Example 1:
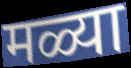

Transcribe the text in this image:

मळ्या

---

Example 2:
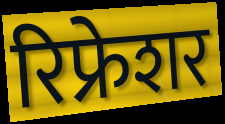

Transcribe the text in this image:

रिफ्रेशर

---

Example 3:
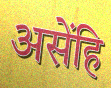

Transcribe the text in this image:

असेंहि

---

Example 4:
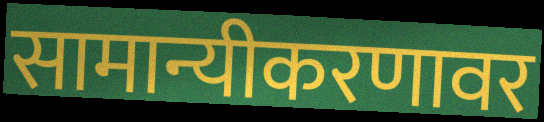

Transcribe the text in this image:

सामान्यीकरणावर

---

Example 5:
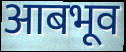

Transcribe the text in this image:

आबभूव